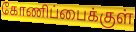
கோணிப்பைக்குள்